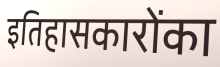
इतिहासकारोंका